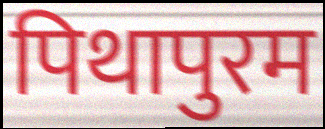
पिथापुरम